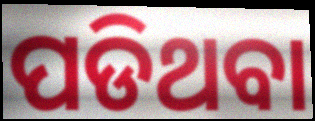
ପଡିଥବା